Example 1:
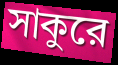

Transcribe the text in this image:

সাকুরে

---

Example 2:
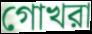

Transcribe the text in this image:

গোখরা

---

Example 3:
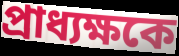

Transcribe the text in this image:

প্রাধ্যক্ষকে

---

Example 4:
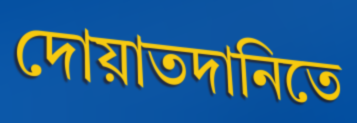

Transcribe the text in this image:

দোয়াতদানিতে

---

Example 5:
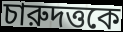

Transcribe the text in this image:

চারুদত্তকে